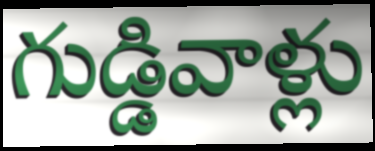
గుడ్డివాళ్లు